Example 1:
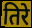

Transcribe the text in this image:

तिरे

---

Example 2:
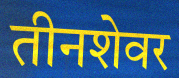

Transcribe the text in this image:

तीनशेवर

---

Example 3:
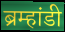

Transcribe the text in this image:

ब्रम्हांडी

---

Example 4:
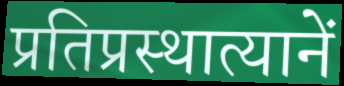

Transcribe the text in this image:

प्रतिप्रस्थात्यानें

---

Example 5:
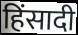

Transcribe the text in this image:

हिंसादी